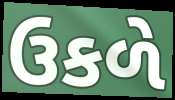
ઉકળે